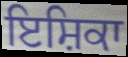
ਇਸ਼ਿਕਾ